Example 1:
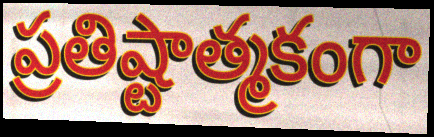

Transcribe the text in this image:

ప్రతిష్టాత్మకంగా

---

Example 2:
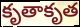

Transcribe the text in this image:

కృతాకృత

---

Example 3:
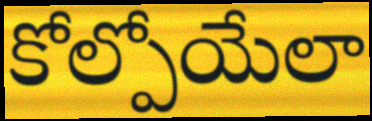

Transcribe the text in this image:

కోల్పోయేలా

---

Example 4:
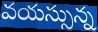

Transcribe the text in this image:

వయస్సున్న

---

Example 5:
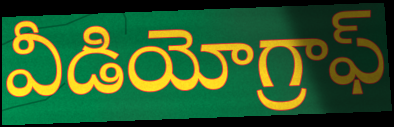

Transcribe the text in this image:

వీడియోగ్రాఫ్